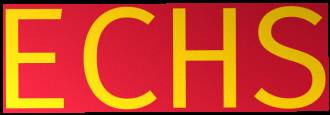
ECHS